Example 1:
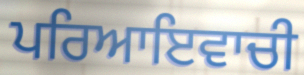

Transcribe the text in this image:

ਪਰਿਆਇਵਾਚੀ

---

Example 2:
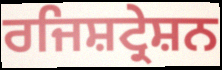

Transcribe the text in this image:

ਰਜਿਸ਼ਟ੍ਰੇਸ਼ਨ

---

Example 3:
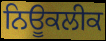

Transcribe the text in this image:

ਨਿਊਕਲੀਕ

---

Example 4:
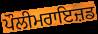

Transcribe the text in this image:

ਪੌਲੀਮਰਾਇਜ਼ਡ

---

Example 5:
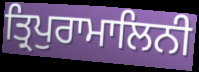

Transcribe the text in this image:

ਤ੍ਰਿਪੁਰਾਮਾਲਿਨੀ